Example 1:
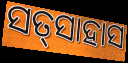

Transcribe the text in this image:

ସତ୍‌ସାହାସ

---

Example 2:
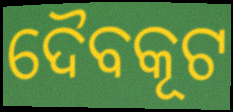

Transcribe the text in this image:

ଦୈବକୂଟ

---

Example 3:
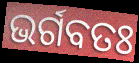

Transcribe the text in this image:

ଭର୍ଗବତଃ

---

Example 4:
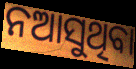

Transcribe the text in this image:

ନଆସୁଥିବା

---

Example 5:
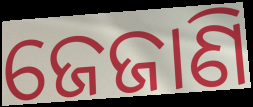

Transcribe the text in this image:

ଜେଜାଣି